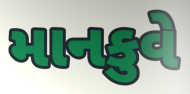
માનકુવે